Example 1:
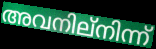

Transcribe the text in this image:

അവനില്നിന്ന്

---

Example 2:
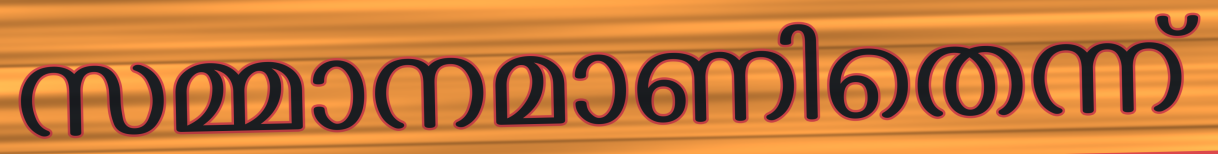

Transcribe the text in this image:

സമ്മാനമാണിതെന്ന്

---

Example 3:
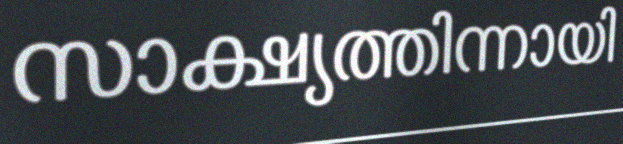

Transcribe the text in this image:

സാക്ഷ്യത്തിന്നായി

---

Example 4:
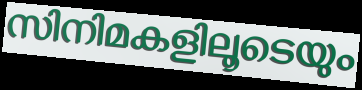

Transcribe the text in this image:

സിനിമകളിലൂടെയും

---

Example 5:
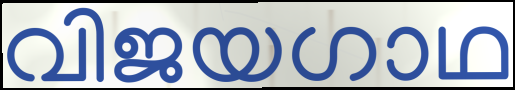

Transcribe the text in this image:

വിജയഗാഥ